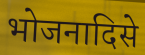
भोजनादिसे